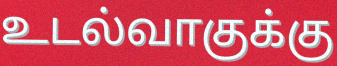
உடல்வாகுக்கு